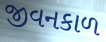
જીવનકાળ